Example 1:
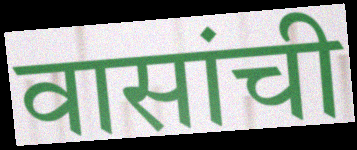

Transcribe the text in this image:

वासांची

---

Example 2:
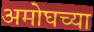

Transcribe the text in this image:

अमोघच्या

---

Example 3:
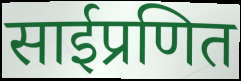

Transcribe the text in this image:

साईप्रणित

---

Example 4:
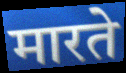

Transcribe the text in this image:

मारते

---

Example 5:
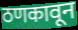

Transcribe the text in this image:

ठणकावून